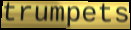
trumpets